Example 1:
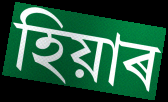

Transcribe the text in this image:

হিয়াৰ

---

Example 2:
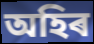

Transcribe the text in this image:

অহিৰ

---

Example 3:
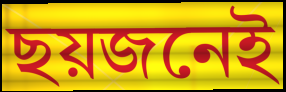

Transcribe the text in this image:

ছয়জনেই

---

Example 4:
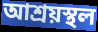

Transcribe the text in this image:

আশ্ৰয়স্থল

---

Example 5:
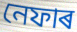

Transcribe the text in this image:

নেফাৰ